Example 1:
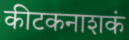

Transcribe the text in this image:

कीटकनाशकं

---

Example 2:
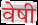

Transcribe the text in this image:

वेषी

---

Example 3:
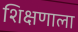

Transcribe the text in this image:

शिक्षणाला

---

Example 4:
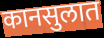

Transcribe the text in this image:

कानसुलात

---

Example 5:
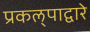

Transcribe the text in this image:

प्रकल्पाद्वारे